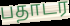
பதாடர